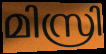
മിസ്രി